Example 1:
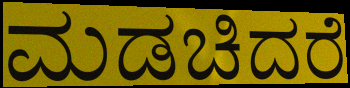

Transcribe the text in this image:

ಮಡಚಿದರೆ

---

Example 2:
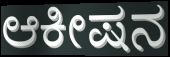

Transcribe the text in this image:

ಆಕೀಷನ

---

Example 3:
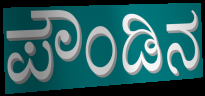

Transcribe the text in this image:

ಪೌಂಡಿನ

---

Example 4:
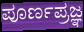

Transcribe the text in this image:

ಪೂರ್ಣಪ್ರಜ್ಞ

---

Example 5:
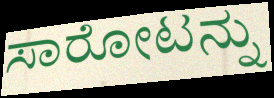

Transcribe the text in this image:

ಸಾರೋಟನ್ನು